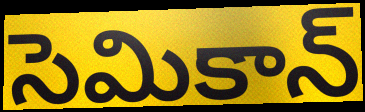
సెమికాన్